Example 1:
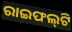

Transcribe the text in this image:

ରାଇଫଲ୍‌ଟି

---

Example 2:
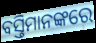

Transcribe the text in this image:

ବସ୍ତିମାନଙ୍କରେ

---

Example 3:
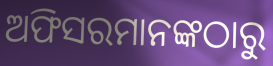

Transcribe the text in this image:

ଅଫିସରମାନଙ୍କଠାରୁ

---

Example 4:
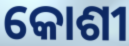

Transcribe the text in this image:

କୋଶୀ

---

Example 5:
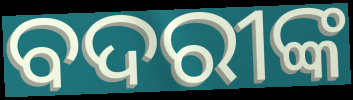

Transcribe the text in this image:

ବଦରୀଙ୍କ